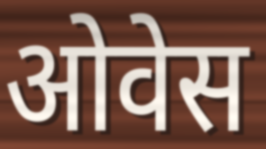
ओवेस